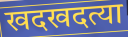
खदखदत्या